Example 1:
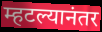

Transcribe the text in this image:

म्हटल्यानंतर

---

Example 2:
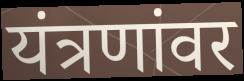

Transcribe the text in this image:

यंत्रणांवर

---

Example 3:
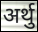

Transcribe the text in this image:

अर्थु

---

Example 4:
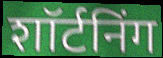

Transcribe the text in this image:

शॉर्टनिंग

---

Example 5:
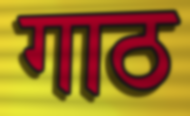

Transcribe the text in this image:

गाठ